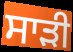
ਸਾੜੀ